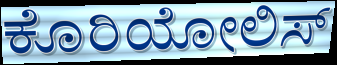
ಕೊರಿಯೋಲಿಸ್